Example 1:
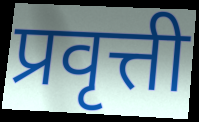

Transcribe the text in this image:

प्रवृत्ती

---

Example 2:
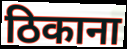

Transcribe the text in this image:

ठिकाना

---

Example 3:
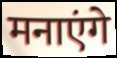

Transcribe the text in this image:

मनाएंगे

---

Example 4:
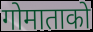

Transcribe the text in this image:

गोमाताको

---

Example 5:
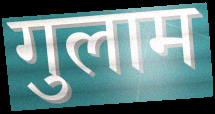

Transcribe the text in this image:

गुलाम